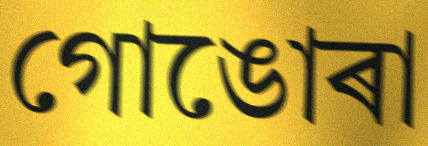
গোঙোৰা